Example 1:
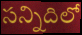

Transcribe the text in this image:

సన్నిదిలో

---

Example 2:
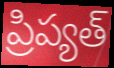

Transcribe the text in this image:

ప్రిప్యత్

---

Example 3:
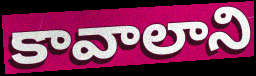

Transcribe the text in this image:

కావాలాని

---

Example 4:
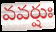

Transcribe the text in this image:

వవర్షుః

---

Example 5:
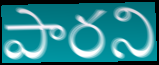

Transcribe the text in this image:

పారని